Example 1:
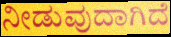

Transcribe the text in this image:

ನೀಡುವುದಾಗಿದೆ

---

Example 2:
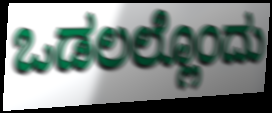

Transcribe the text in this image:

ಒಡಲಲ್ಲೊಂದು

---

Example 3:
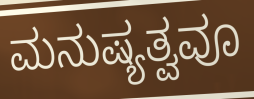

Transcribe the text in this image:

ಮನುಷ್ಯತ್ವವೂ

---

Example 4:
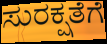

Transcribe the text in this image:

ಸುರಕ್ಷತೆಗೆ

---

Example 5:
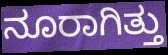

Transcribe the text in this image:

ನೂರಾಗಿತ್ತು